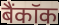
बैंकॉक